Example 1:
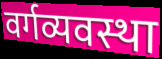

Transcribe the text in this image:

वर्गव्यवस्था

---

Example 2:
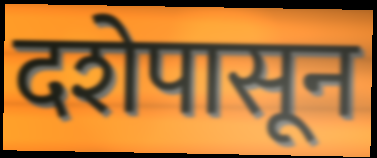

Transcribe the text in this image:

दशेपासून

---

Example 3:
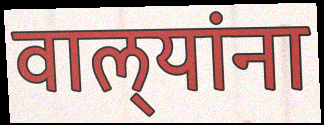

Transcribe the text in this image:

वाल्यांना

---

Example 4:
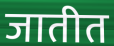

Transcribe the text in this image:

जातीत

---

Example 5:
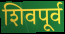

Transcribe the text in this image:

शिवपूर्व